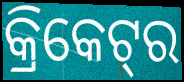
କ୍ରିକେଟ୍‌ର